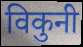
विकुनी